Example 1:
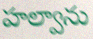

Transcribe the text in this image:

హల్వాను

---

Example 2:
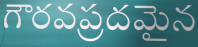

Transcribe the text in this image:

గౌరవప్రదమైన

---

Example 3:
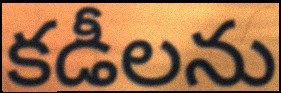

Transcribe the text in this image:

కడీలను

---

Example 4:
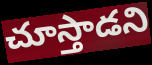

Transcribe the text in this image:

చూస్తాడని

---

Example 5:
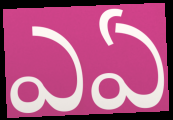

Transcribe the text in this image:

ఎఏ